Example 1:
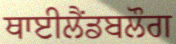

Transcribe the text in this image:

ਥਾਈਲੈਂਡਬਲੌਗ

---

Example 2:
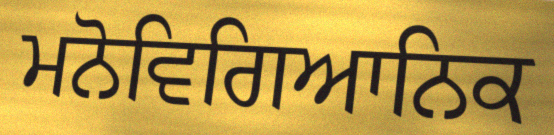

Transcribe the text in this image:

ਮਨੋਵਿਗਿਆਨਿਕ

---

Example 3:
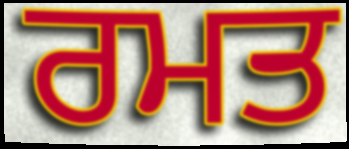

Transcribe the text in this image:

ਰਮਤ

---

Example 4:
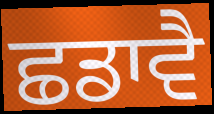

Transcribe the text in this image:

ਛਡਾਵੈ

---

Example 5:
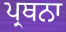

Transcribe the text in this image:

ਪ੍ਰਥਨਾ